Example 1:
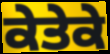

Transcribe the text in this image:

ਕੇਤੇਕੇ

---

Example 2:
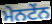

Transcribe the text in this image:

ਮੇਨਟੇਂਨ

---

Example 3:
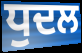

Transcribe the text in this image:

ਧੁਦਲ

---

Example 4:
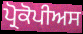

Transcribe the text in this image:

ਪ੍ਰੋਕੋਪੀਅਸ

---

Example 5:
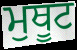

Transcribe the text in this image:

ਮੁਥੂਟ